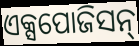
ଏକ୍ସପୋଜିସନ୍